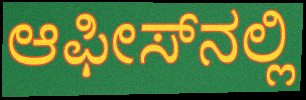
ಆಫೀಸ್‌ನಲ್ಲಿ